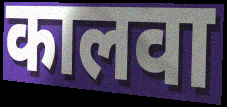
कालवा